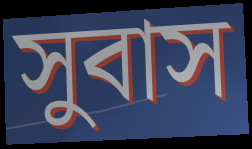
সুবাস